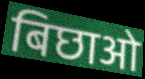
बिछाओ